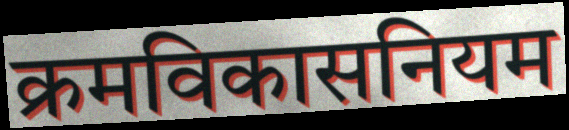
क्रमविकासनियम